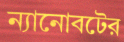
ন্যানোবটের